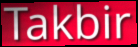
Takbir